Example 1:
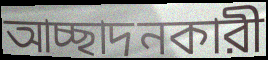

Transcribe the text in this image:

আচ্ছাদনকারী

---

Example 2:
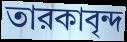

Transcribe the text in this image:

তারকাবৃন্দ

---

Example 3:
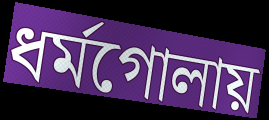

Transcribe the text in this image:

ধর্মগোলায়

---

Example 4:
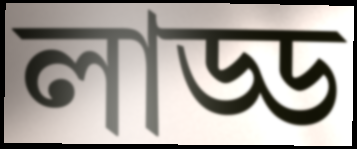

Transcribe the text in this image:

লাড্ড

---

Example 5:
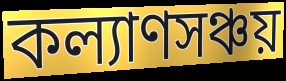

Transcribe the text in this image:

কল্যাণসঞ্চয়